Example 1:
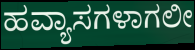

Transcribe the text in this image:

ಹವ್ಯಾಸಗಳಾಗಲೀ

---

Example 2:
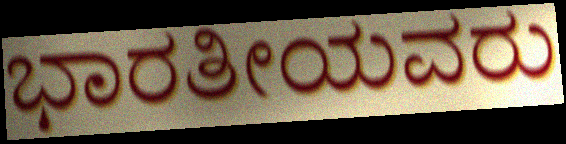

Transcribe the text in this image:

ಭಾರತೀಯವರು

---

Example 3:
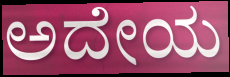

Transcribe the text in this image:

ಅದೇಯ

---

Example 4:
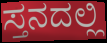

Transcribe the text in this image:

ಸ್ತನದಲ್ಲಿ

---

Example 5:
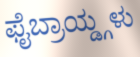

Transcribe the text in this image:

ಫೈಬ್ರಾಯ್ಡ್ಗಳು